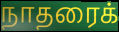
நாதரைக்